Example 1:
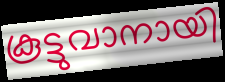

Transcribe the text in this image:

കൂട്ടുവാനായി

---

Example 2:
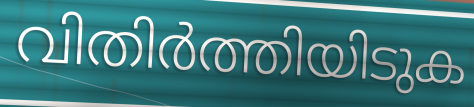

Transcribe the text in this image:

വിതിർത്തിയിടുക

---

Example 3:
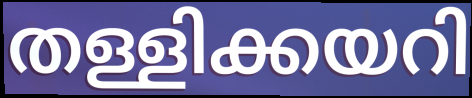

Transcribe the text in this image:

തള്ളിക്കയറി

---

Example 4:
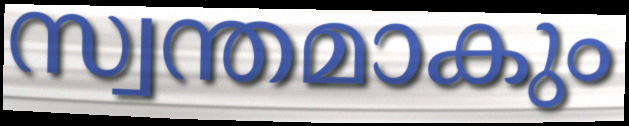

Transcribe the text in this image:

സ്വന്തമാകും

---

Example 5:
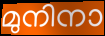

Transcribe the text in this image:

മുനിനാ